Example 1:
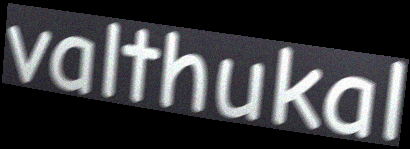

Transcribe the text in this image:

valthukal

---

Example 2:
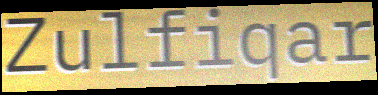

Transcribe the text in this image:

Zulfiqar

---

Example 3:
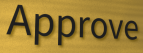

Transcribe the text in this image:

Approve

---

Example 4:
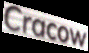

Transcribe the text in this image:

Cracow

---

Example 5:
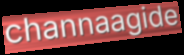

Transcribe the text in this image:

channaagide